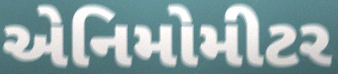
એનિમોમીટર